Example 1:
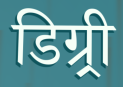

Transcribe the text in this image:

डिग्र्री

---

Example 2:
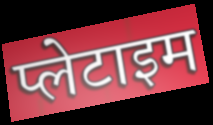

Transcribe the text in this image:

प्लेटाइम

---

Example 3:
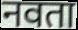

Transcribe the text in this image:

नवता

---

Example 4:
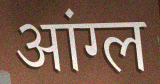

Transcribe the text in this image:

आंग्ल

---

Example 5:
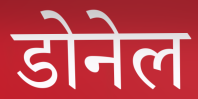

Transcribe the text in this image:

डोनेल